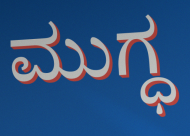
ಮುಗ್ಧ